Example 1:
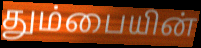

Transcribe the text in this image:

தும்பையின்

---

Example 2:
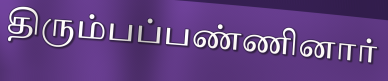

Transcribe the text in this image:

திரும்பப்பண்ணினார்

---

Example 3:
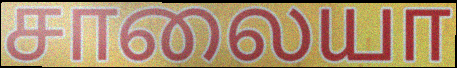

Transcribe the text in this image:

சாலையா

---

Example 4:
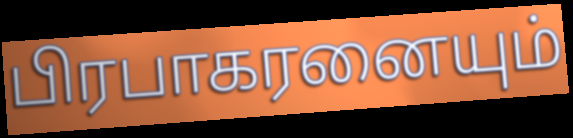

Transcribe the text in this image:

பிரபாகரனையும்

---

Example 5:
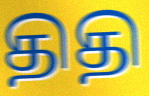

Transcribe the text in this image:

திதி